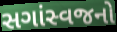
સગાંસ્વજનો